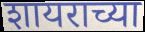
शायराच्या